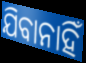
ଯିବାନାହିଁ